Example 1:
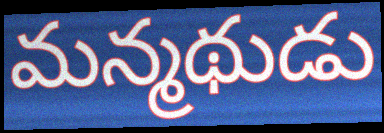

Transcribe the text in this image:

మన్మథుడు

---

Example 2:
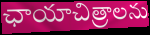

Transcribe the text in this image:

ఛాయాచిత్రాలను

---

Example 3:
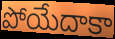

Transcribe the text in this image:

పోయేదాకా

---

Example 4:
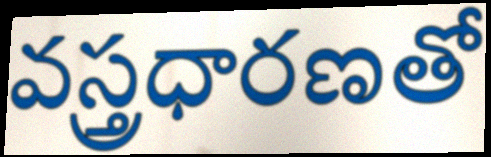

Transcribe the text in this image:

వస్త్రధారణతో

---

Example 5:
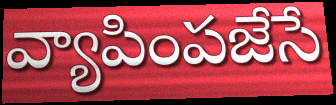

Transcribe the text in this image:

వ్యాపింపజేసే